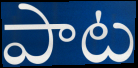
పాట